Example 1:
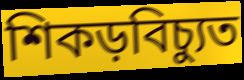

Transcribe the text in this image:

শিকড়বিচ্যুত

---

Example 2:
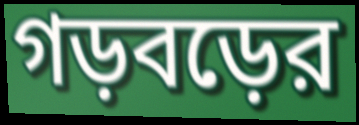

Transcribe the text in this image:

গড়বড়ের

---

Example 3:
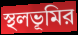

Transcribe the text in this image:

স্থলভূমির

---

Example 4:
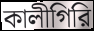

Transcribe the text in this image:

কালীগিরি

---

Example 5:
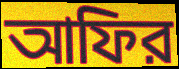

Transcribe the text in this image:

আফির